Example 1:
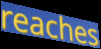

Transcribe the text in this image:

reaches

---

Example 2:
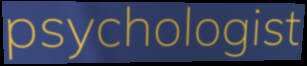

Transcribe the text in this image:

psychologist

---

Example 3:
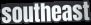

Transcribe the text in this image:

southeast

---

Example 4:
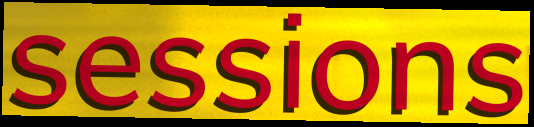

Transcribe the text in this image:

sessions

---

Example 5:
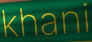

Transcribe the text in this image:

khani